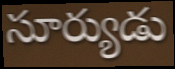
సూర్యుడు